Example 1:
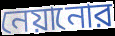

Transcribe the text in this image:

নেয়ানোর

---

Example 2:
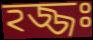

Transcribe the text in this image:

হজ্জঃ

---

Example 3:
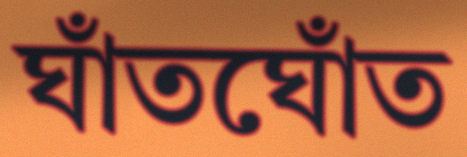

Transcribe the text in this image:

ঘাঁতঘোঁত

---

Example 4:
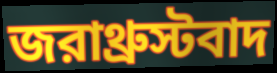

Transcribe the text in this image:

জরাথ্রুস্টবাদ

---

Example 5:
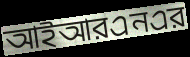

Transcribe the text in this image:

আইআরএনএর